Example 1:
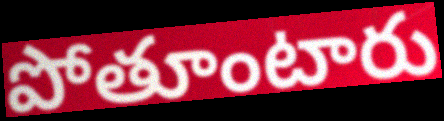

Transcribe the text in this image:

పోతూంటారు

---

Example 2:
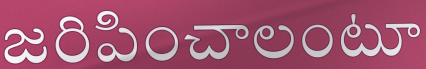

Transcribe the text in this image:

జరిపించాలంటూ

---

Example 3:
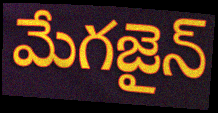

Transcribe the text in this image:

మేగజైన్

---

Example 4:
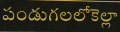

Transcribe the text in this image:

పండుగలలోకెల్లా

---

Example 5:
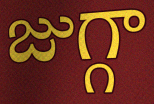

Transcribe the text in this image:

జుగ్గా